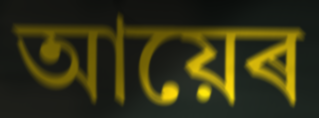
আয়েৰ